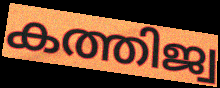
കത്തിജ്വ